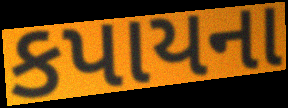
કપાયના